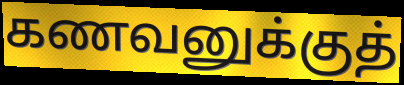
கணவனுக்குத்